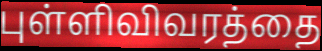
புள்ளிவிவரத்தை